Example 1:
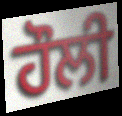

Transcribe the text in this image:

ਹੌਲੀ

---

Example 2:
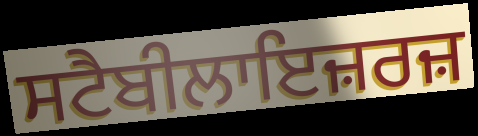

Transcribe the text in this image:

ਸਟੈਬੀਲਾਇਜ਼ਰਜ਼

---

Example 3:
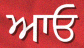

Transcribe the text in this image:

ਆਓ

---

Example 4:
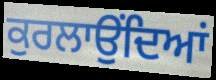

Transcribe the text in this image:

ਕੁਰਲਾਉਂਦਿਆਂ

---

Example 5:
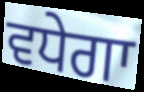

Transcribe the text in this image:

ਵਧੇਗਾ